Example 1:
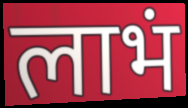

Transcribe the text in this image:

लाभं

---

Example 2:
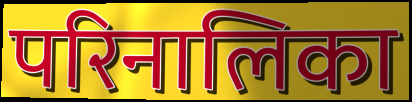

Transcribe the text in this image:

परिनालिका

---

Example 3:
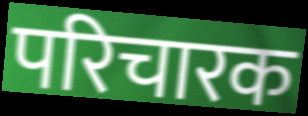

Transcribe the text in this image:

परिचारक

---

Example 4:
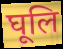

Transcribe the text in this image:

घूलि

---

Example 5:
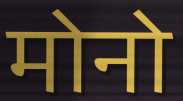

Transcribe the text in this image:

मोनो